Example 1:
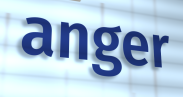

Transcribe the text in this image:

anger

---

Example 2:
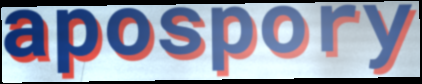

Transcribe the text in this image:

apospory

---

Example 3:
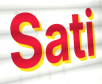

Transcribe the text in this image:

Sati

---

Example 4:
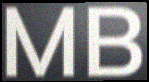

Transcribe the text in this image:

MB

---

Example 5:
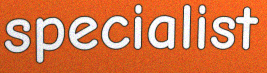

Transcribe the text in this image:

specialist